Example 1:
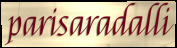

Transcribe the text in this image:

parisaradalli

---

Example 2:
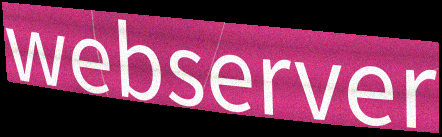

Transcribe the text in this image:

webserver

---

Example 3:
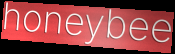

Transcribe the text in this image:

honeybee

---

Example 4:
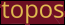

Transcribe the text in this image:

topos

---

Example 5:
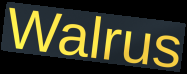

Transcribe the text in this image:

Walrus